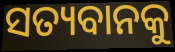
ସତ୍ୟବାନକୁ